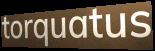
torquatus